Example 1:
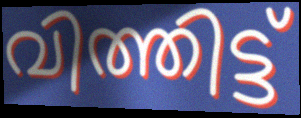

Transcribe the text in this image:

വിത്തിട്ട്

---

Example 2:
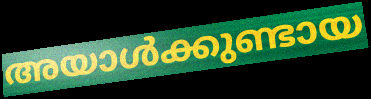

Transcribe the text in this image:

അയാൾക്കുണ്ടായ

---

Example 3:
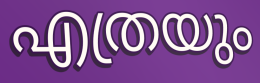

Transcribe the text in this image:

എത്രയും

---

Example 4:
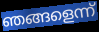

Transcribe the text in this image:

ഞങ്ങളെന്ന്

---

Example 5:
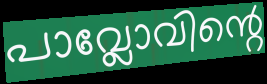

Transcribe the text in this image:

പാവ്ലോവിന്റെ